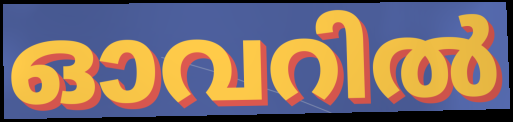
ഓവറിൽ